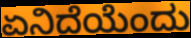
ಏನಿದೆಯೆಂದು